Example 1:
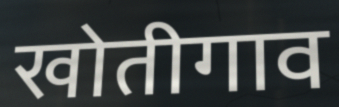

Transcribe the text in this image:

खोतीगाव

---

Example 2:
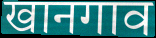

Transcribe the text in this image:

खानगाव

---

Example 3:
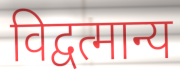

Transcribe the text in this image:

विद्वत्मान्य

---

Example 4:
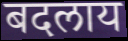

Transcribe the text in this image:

बदलाय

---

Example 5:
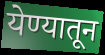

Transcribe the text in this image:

येण्यातून